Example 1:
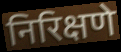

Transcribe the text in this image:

निरिक्षणे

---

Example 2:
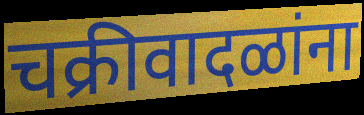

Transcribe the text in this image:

चक्रीवादळांना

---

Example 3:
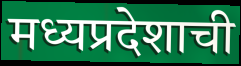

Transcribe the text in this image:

मध्यप्रदेशाची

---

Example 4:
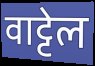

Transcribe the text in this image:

वाट्टेल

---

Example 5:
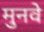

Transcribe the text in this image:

मुनवे